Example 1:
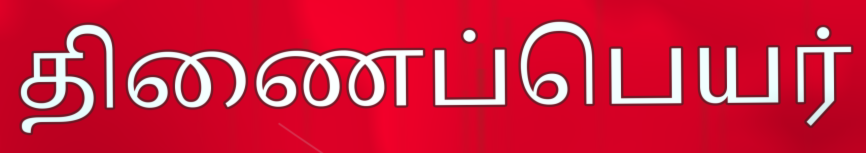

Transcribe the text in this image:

திணைப்பெயர்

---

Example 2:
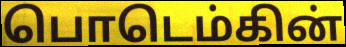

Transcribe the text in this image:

பொடெம்கின்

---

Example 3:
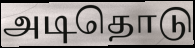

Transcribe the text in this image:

அடிதொடு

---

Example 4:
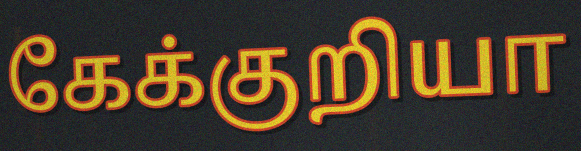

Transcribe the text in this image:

கேக்குறியா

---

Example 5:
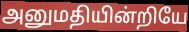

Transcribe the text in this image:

அனுமதியின்றியே